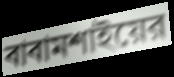
বাবামশাইয়ের